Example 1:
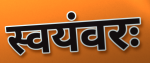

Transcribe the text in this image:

स्वयंवरः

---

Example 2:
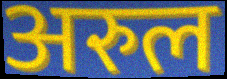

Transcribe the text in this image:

अरुल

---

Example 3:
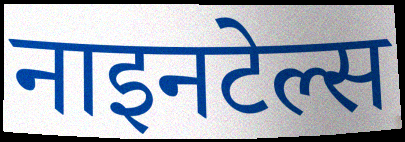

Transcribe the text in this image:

नाइनटेल्स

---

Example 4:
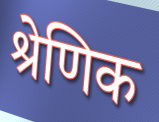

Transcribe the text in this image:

श्रेणिक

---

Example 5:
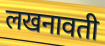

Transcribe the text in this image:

लखनावती